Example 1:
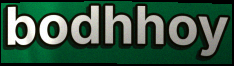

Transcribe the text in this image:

bodhhoy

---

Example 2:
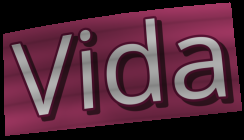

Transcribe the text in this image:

Vida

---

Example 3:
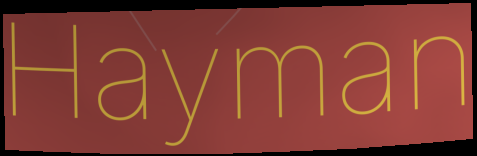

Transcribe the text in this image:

Hayman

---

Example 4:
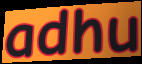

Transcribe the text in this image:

adhu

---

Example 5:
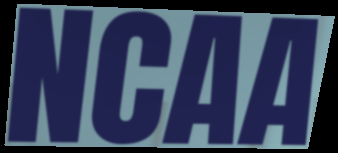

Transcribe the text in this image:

NCAA